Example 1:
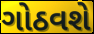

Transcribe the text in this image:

ગોઠવશે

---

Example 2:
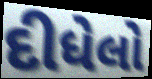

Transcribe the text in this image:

દીધેલો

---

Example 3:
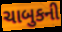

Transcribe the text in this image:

ચાબુકની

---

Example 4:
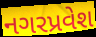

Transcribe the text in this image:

નગરપ્રવેશ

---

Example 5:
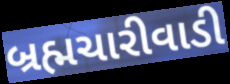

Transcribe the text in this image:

બ્રહ્મચારીવાડી